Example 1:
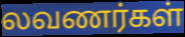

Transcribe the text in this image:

லவணர்கள்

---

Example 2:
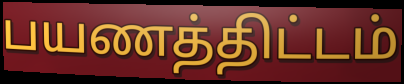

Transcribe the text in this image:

பயணத்திட்டம்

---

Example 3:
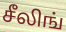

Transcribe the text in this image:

சீலிங்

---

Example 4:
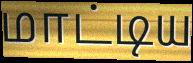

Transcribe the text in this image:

மாட்டிய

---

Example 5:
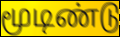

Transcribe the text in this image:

மூடிண்டு